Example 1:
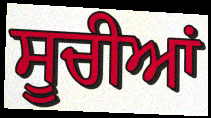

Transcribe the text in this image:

ਸੂਚੀਆਂ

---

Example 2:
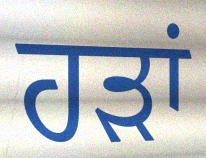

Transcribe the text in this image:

ਹੜਾਂ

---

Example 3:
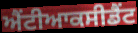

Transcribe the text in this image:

ਐਂਟੀਆਕਸੀਡੈਂਟ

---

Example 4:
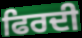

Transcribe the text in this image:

ਫਿਰਦੀ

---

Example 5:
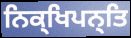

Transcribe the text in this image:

ਨਿਕ੍ਖਿਪਨ੍ਤਿ